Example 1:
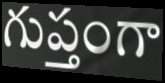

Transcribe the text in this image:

గుప్తంగా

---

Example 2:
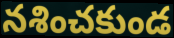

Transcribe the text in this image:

నశించకుండ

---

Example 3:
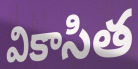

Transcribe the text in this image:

వికాసిత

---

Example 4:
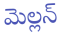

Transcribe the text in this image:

మెల్లన్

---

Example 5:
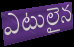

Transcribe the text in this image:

ఎటులైన